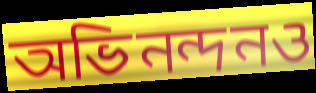
অভিনন্দনও